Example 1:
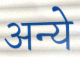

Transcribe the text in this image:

अन्ये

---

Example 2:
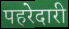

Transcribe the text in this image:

पहरेदारी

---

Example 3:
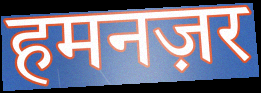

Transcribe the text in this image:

हमनज़र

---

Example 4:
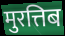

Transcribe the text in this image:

मुरत्तिब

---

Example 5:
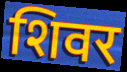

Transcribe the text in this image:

शिवर